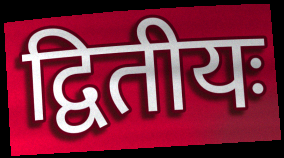
द्वितीयः